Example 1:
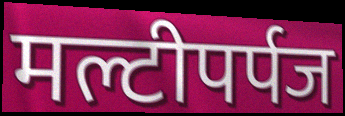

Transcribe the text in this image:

मल्टीपर्पज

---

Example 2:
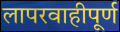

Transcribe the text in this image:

लापरवाहीपूर्ण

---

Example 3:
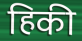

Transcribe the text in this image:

हिकी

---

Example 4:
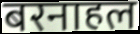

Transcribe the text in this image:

बरनाहल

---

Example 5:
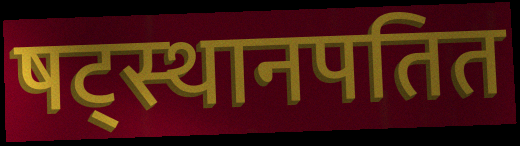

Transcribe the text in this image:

षट्स्थानपतित